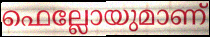
ഫെല്ലോയുമാണ്